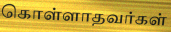
கொள்ளாதவர்கள்